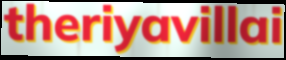
theriyavillai